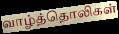
வாழ்த்தொலிகள்